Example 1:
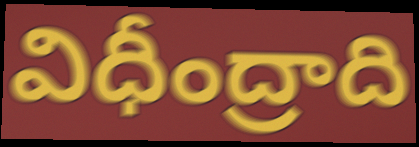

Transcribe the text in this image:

విధీంద్రాది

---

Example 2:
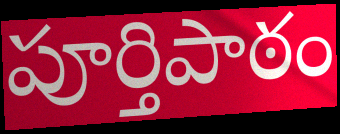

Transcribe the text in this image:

పూర్తిపాఠం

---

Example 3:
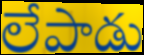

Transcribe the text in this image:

లేపాడు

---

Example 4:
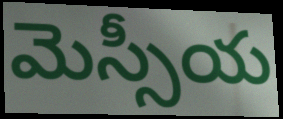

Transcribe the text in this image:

మెస్సీయ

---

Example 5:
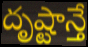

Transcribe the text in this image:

దృష్టాన్తే